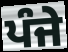
ਪੰਜੇ